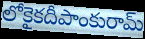
లోకైకదీపాంకురామ్